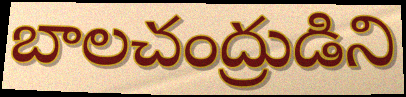
బాలచంద్రుడిని